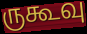
ருகூவு